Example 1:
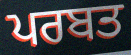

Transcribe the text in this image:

ਪਰਬਤ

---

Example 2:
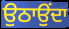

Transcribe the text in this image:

ਉਠਾਉਂਦਾ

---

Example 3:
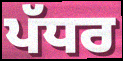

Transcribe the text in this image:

ਪੱਧਰ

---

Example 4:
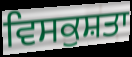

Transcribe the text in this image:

ਵਿਸਕੁਸ਼ਤਾ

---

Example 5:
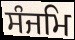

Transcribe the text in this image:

ਸੰਜਮਿ